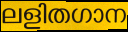
ലളിതഗാന